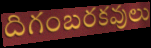
దిగంబరకవులు